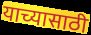
याच्यासाठी